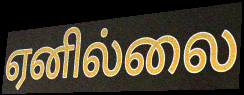
ஏனில்லை